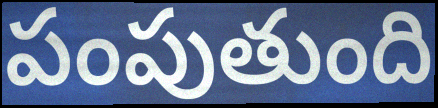
పంపుతుంది